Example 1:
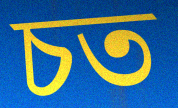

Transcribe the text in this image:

চত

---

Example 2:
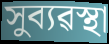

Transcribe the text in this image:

সুব্যৱস্থা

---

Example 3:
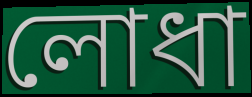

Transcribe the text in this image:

লোধা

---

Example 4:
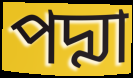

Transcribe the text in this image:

পদ্মা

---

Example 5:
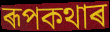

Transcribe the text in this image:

ৰূপকথাৰ